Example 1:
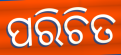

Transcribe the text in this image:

ପରିଚିତ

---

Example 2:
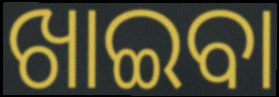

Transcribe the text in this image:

ଖାଇବା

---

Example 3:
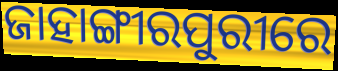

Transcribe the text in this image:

ଜାହାଙ୍ଗୀରପୁରୀରେ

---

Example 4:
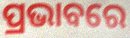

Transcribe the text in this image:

ପ୍ରଭାବରେ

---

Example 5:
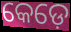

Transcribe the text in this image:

କେଡ଼େ